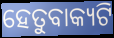
ହେତୁବାକ୍ୟଟି